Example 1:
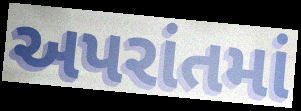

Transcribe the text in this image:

અપરાંતમાં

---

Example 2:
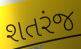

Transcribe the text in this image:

શતરંજ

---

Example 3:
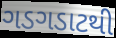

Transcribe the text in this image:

ગડગડાટથી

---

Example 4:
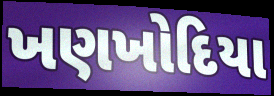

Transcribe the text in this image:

ખણખોદિયા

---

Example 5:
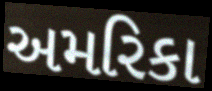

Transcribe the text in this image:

અમરિકા